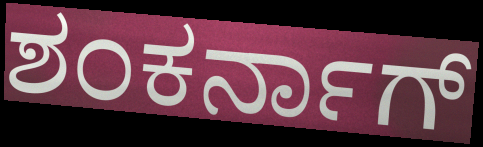
ಶಂಕರ್ನಾಗ್